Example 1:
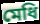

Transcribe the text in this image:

মেধি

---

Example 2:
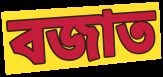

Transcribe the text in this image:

বজাত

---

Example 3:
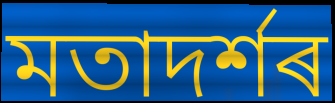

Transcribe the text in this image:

মতাদৰ্শৰ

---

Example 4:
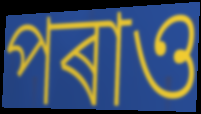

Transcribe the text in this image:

পৰাও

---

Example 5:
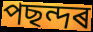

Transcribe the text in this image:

পছন্দৰ